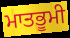
ਮਾਤਭੂਮੀ